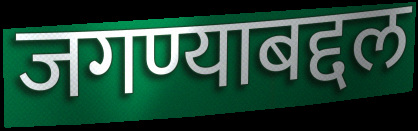
जगण्याबद्दल